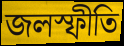
জলস্ফীতি